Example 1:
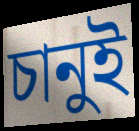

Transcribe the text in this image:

চানুই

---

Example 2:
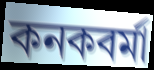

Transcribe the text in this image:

কনকবর্মা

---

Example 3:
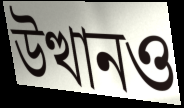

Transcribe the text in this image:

উত্থানও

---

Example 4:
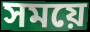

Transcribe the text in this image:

সময়ে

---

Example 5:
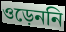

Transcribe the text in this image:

ওড়েননি